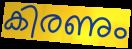
കിരണും